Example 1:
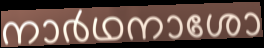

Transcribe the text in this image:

നാർഥനാശോ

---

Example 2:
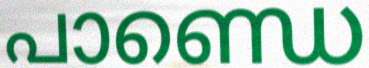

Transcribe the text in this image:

പാണ്ഡെ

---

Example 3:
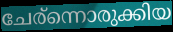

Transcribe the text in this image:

ചേര്ന്നൊരുക്കിയ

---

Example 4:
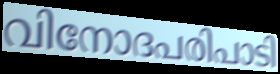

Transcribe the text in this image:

വിനോദപരിപാടി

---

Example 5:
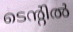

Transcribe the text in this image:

ടെന്റിൽ